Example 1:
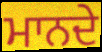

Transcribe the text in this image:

ਮਾਨਦੇ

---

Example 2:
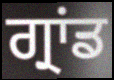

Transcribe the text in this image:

ਗ੍ਰਾਂਡ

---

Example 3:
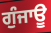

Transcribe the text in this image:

ਗੁੰਜਾਊ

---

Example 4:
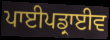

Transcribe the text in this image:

ਪਾਈਪਡ੍ਰਾਈਵ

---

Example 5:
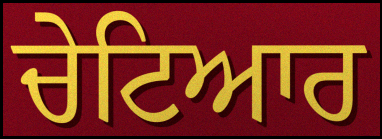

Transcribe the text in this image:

ਚੇਟਿਆਰ